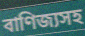
বাণিজ্যসহ